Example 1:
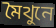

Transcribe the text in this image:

মৈথুনে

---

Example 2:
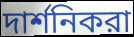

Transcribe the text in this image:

দার্শনিকরা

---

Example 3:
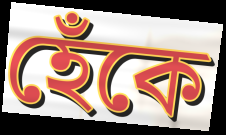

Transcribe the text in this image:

হেঁকে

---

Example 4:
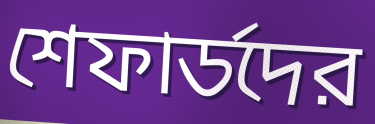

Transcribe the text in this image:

শেফার্ডদের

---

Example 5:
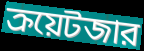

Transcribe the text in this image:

ক্রয়েটজার